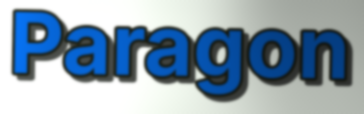
Paragon